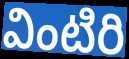
వింటిరి